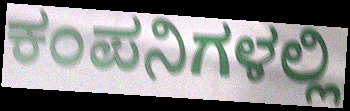
ಕಂಪನಿಗಳಲ್ಲಿ